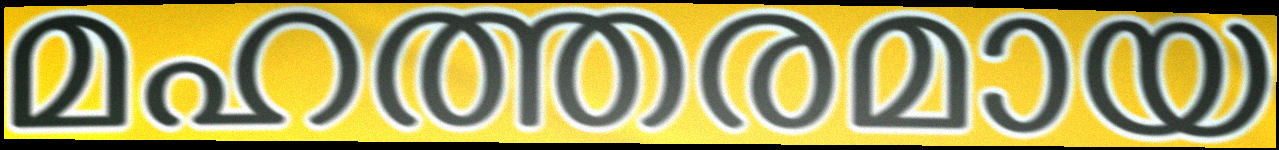
മഹത്തരമായ